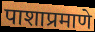
पाशाप्रमाणे